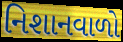
નિશાનવાળો